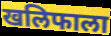
खलिफाला